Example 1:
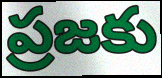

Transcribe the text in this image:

ప్రజకు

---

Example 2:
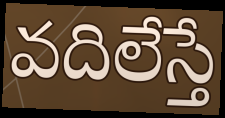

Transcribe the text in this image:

వదిలేస్తే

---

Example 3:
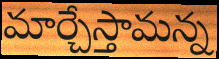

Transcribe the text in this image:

మార్చేస్తామన్న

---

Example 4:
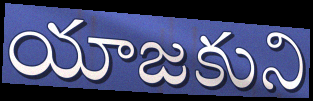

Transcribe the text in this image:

యాజకుని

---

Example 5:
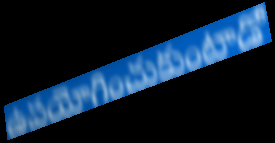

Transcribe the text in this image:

ఉపయోగించుకుంటాడో